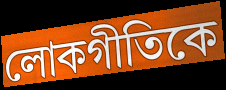
লোকগীতিকে